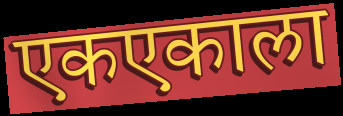
एकएकाला